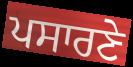
ਪਸਾਰਣੇ